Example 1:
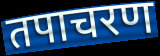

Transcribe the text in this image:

तपाचरण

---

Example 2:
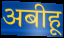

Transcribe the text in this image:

अबीहू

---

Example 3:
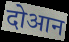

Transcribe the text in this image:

दोआन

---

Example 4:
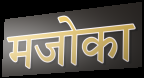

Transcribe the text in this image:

मजोका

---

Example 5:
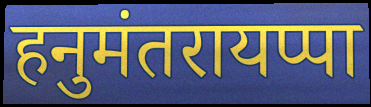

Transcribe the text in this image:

हनुमंतरायप्पा